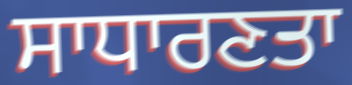
ਸਾਧਾਰਣਤਾ